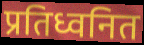
प्रतिध्वनित